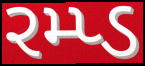
રમ્પ્ડ